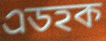
এডহক